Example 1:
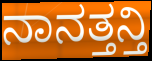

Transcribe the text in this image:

ನಾನತ್ತನ್ತಿ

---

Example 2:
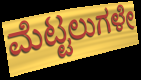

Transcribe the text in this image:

ಮೆಟ್ಟಲುಗಳೇ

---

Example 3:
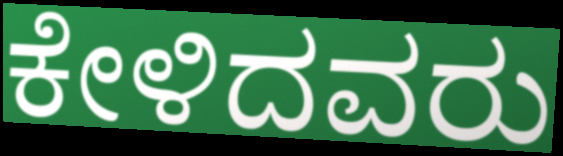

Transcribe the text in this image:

ಕೇಳಿದವರು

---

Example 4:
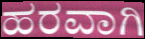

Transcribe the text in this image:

ಹರವಾಗಿ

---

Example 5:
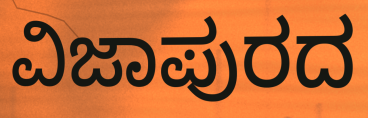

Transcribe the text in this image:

ವಿಜಾಪುರದ